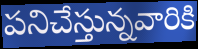
పనిచేస్తున్నవారికి